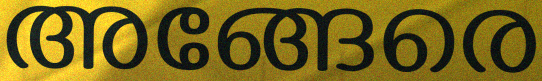
അങ്ങേരെ